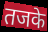
तजके